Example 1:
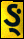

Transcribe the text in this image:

ઙ્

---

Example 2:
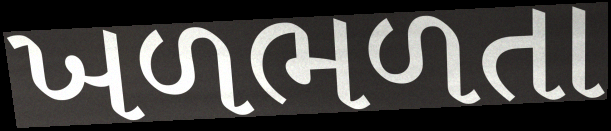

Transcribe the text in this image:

ખળભળતા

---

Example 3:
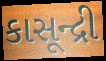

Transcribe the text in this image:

કાસૂન્દ્રી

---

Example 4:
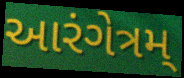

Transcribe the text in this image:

આરંગેત્રમ્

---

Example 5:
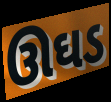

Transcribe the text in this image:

ઊઘડ